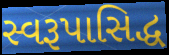
સ્વરૂપાસિદ્ધ